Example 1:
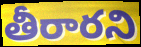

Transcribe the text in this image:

తీరారని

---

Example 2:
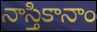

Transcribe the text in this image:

నాస్తికానాం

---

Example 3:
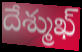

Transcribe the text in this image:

దేశ్ముఖ్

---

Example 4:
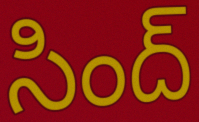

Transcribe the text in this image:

సింద్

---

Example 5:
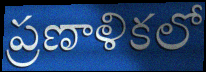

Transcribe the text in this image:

ప్రణాళికలో